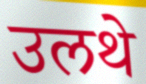
उलथे